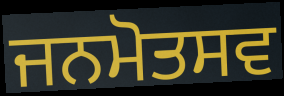
ਜਨਮੋਤਸਵ